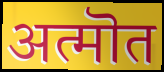
अत्मॊत